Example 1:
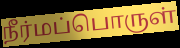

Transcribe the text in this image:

நீர்மப்பொருள்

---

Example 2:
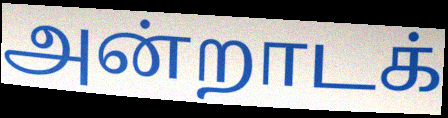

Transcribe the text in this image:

அன்றாடக்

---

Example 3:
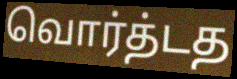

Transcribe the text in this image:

வொர்த்டத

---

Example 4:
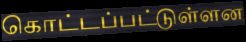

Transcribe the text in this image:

கொட்டப்பட்டுள்ளன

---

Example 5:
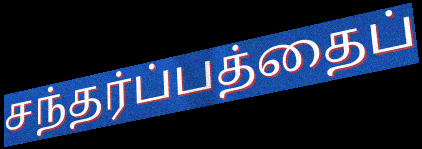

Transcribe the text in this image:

சந்தர்ப்பத்தைப்